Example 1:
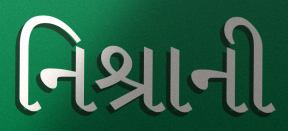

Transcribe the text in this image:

નિશ્રાની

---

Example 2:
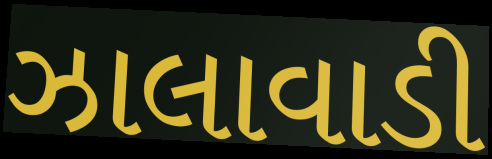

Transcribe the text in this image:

ઝાલાવાડી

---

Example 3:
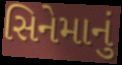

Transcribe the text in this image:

સિનેમાનું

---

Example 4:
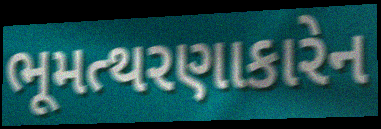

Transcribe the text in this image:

ભૂમત્થરણાકારેન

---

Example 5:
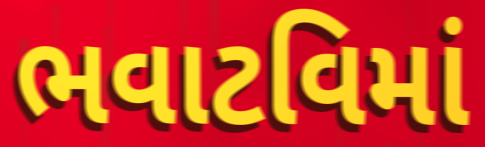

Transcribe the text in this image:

ભવાટવિમાં